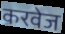
करवेज